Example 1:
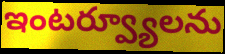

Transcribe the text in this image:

ఇంటర్వ్యూలను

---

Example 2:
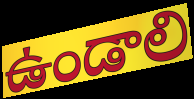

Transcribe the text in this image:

ఉండాలి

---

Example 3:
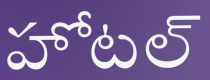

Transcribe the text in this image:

హోటల్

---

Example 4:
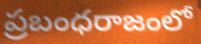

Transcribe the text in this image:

ప్రబంధరాజంలో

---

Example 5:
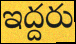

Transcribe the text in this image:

ఇద్దరు